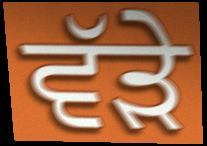
ਵੱਡ਼ੇ